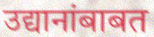
उद्यानांबाबत